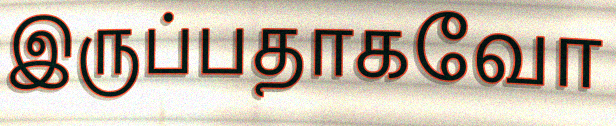
இருப்பதாகவோ